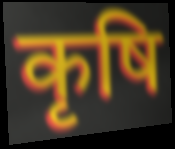
कृषि